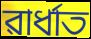
ৱাৰ্ধাত